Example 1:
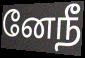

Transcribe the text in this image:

னேநீ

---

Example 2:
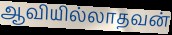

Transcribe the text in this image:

ஆவியில்லாதவன்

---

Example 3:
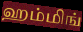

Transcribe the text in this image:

ஹம்மிங்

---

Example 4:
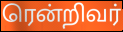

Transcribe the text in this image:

ரென்றிவர்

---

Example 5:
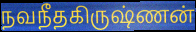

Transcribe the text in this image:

நவநீதகிருஷ்ணன்